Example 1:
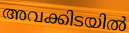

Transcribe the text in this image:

അവക്കിടയിൽ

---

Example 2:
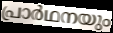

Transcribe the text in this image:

പ്രാർഥനയും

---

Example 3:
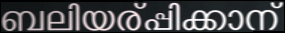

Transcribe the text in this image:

ബലിയര്പ്പിക്കാന്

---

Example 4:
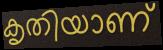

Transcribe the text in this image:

കൃതിയാണ്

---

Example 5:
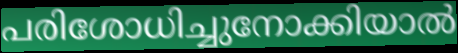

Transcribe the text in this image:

പരിശോധിച്ചുനോക്കിയാൽ